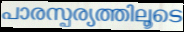
പാരസ്പര്യത്തിലൂടെ